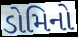
ડોમિનો